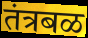
तंत्रबळ